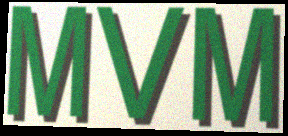
MVM